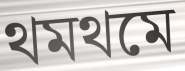
থমথমে